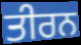
ਤੀਰਨ